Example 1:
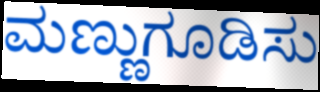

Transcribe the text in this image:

ಮಣ್ಣುಗೂಡಿಸು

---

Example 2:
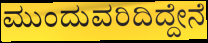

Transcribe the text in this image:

ಮುಂದುವರಿದಿದ್ದೇನೆ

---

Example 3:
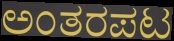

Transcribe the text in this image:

ಅಂತರಪಟ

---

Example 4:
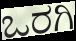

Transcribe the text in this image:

ಒರಗಿ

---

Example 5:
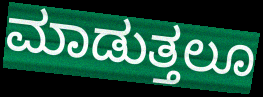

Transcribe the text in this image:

ಮಾಡುತ್ತಲೂ